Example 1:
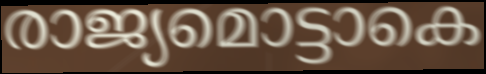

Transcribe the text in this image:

രാജ്യമൊട്ടാകെ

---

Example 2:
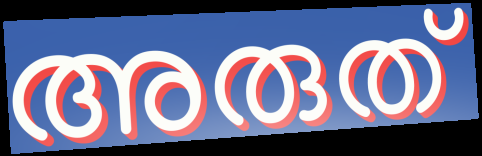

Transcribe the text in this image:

അരുത്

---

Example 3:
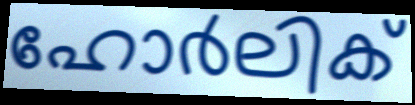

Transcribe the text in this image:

ഹോർലിക്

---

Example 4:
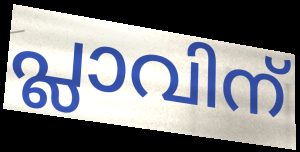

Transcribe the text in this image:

പ്ലാവിന്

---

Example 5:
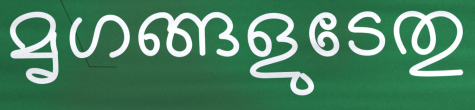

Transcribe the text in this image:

മൃഗങ്ങളുടേതു